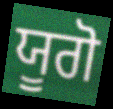
ਯੂਗੋ